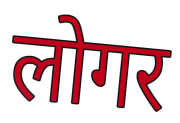
लोगर